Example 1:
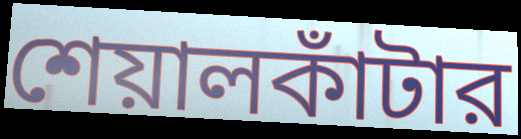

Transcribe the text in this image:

শেয়ালকাঁটার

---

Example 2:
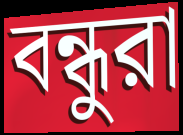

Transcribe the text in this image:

বন্ধুরা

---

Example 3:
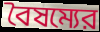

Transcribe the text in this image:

বৈষম্যের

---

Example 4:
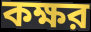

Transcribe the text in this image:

কক্ষর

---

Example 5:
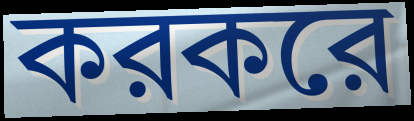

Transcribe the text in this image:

করকরে